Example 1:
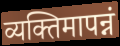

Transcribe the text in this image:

व्यक्तिमापन्नं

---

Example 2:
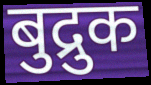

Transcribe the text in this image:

बुद्रुक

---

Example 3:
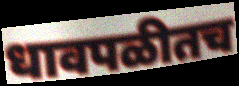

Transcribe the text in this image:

धावपळीतच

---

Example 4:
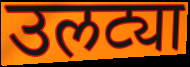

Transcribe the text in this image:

उलट्या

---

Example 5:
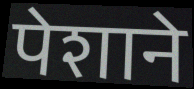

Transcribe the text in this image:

पेशाने